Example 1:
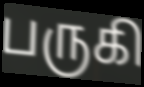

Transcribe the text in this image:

பருகி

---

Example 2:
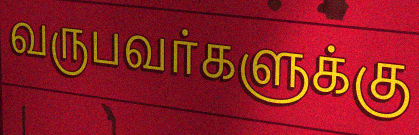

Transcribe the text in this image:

வருபவர்களுக்கு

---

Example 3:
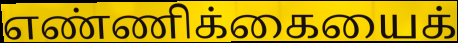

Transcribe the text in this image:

எண்ணிக்கையைக்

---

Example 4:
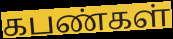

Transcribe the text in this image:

கபண்கள்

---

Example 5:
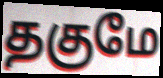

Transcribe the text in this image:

தகுமே